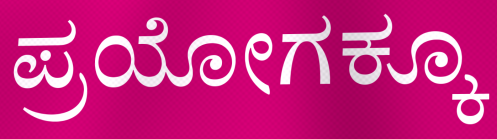
ಪ್ರಯೋಗಕ್ಕೂ